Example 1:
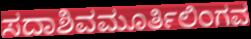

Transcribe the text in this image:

ಸದಾಶಿವಮೂರ್ತಿಲಿಂಗವ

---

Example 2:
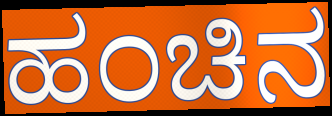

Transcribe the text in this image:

ಹಂಚಿನ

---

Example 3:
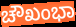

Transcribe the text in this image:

ಚೌಖಂಭಾ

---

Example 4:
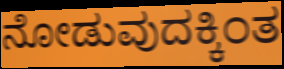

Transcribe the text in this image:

ನೋಡುವುದಕ್ಕಿಂತ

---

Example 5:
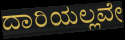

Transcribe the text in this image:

ದಾರಿಯಲ್ಲವೇ